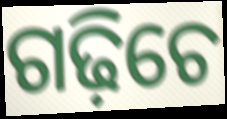
ଗଢ଼ିଚେ